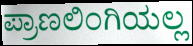
ಪ್ರಾಣಲಿಂಗಿಯಲ್ಲ